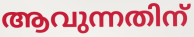
ആവുന്നതിന്